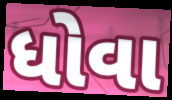
ધોવા